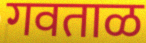
गवताळ